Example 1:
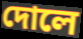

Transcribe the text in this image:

দোলে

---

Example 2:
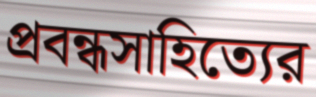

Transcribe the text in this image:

প্রবন্ধসাহিত্যের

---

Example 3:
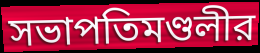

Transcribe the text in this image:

সভাপতিমণ্ডলীর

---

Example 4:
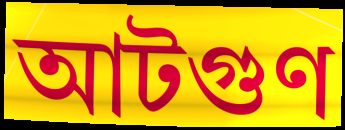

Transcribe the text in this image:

আটগুণ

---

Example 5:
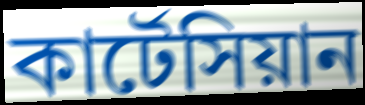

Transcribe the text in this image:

কার্টেসিয়ান